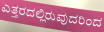
ಎತ್ತರದಲ್ಲಿರುವುದರಿಂದ